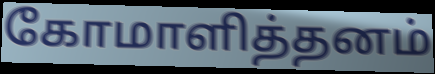
கோமாளித்தனம்